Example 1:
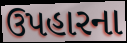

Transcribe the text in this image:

ઉપહારના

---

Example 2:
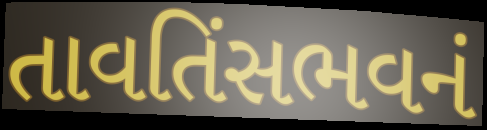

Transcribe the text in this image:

તાવતિંસભવનં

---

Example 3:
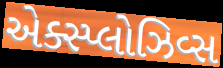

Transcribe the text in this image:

એક્સ્પ્લોઝિવ્સ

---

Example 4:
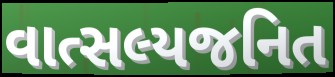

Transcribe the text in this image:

વાત્સલ્યજનિત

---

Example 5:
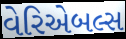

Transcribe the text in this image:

વેરિએબલ્સ